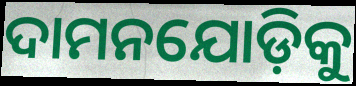
ଦାମନଯୋଡ଼ିକୁ